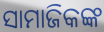
ସାମାଜିକଙ୍କ